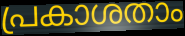
പ്രകാശതാം